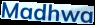
Madhwa